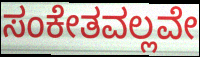
ಸಂಕೇತವಲ್ಲವೇ